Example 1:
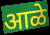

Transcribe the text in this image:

आळे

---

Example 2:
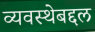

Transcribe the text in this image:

व्यवस्थेबद्दल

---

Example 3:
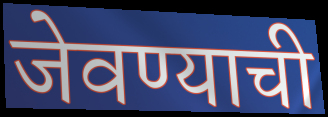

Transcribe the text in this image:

जेवण्याची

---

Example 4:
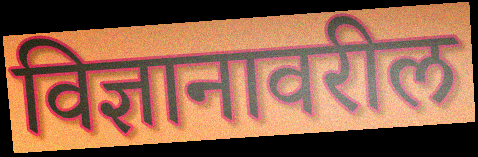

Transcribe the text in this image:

विज्ञानावरील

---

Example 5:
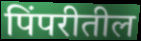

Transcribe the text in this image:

पिंपरीतील